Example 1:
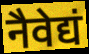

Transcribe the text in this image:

नैवेद्यं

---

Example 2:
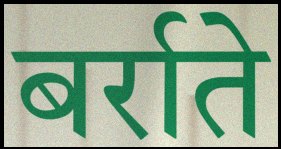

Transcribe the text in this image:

बर्राते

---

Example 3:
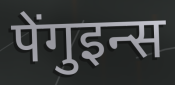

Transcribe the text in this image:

पेंगुइन्स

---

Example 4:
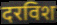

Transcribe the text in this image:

दरविश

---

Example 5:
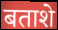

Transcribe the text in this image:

बताशे